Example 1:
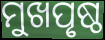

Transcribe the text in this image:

ମୁଖପୃଷ୍ଠ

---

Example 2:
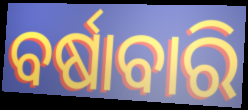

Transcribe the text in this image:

ବର୍ଷାବାରି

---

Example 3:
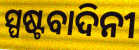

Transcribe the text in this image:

ସ୍ପଷ୍ଟବାଦିନୀ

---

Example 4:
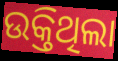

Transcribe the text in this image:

ଉକ୍ତିଥିଲା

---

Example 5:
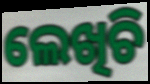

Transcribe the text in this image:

ଲେଖିଚି